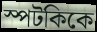
স্পটকিকে